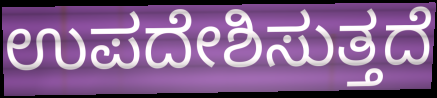
ಉಪದೇಶಿಸುತ್ತದೆ